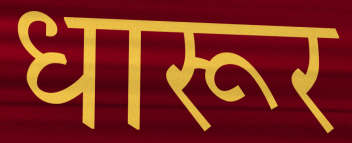
धारूर